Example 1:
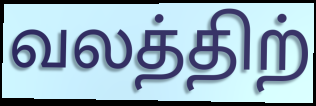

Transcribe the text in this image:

வலத்திற்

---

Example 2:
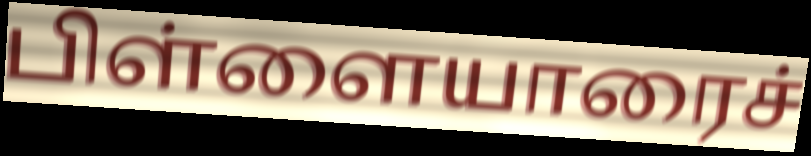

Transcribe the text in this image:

பிள்ளையாரைச்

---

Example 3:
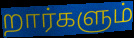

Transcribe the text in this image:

றார்களும்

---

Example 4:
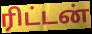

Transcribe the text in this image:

ரிட்டன்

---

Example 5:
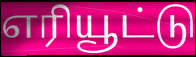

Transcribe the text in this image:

எரியூட்டு